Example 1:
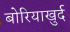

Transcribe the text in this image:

बोरियाखुर्द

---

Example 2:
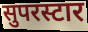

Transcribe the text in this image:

सुपरस्टार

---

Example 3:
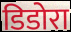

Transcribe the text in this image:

डिडोरा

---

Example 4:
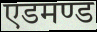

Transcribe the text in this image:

एडमण्ड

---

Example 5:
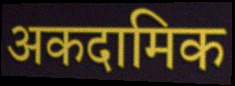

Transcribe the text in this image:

अकदामिक